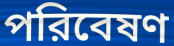
পরিবেষণ